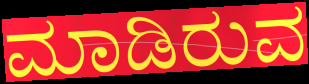
ಮಾಡಿರುವ